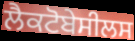
ਲੈਕਟੋਬੇਸੀਲਸ